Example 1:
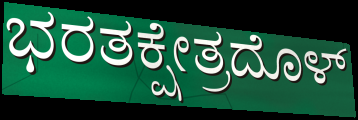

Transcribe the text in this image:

ಭರತಕ್ಷೇತ್ರದೊಳ್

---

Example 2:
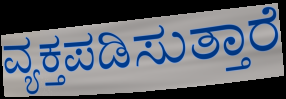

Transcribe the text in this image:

ವ್ಯಕ್ತಪಡಿಸುತ್ತಾರೆ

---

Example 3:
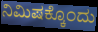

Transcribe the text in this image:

ನಿಮಿಷಕ್ಕೊಂದು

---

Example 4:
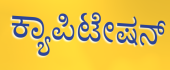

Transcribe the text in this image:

ಕ್ಯಾಪಿಟೇಷನ್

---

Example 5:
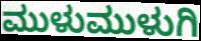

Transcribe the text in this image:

ಮುಳುಮುಳುಗಿ